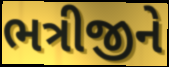
ભત્રીજીને